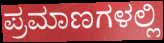
ಪ್ರಮಾಣಗಳಲ್ಲಿ